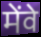
मेंवे